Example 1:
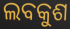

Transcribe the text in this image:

ଲବକୁଶ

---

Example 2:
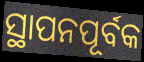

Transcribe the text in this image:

ସ୍ଥାପନପୂର୍ବକ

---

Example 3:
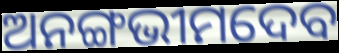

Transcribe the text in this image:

ଅନଙ୍ଗଭୀମଦେବ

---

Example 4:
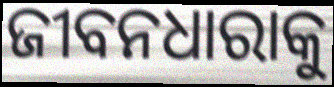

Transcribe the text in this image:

ଜୀବନଧାରାକୁ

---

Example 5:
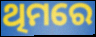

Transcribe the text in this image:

ଥିମରେ